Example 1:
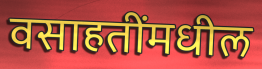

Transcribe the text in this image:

वसाहतींमधील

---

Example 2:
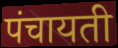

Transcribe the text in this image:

पंचायती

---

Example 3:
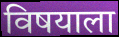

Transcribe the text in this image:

विषयाला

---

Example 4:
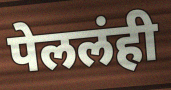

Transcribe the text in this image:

पेललंही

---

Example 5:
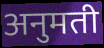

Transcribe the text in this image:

अनुमती